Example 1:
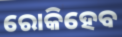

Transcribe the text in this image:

ରୋକିହେବ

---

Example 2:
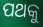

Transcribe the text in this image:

ପଥକୁ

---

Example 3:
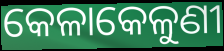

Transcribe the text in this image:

କେଳାକେଳୁଣୀ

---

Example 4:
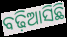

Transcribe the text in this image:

ବଢ଼ିଆସିଛି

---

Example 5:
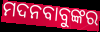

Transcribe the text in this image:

ମଦନବାବୁଙ୍କର